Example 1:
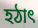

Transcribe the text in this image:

হঠাৎ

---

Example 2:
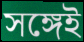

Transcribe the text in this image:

সঙ্গেই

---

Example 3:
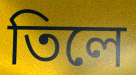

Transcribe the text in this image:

তিলে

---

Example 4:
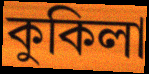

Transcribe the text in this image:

কুকিলা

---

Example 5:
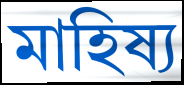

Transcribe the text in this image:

মাহিষ্য